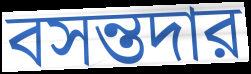
বসন্তদার